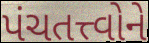
પંચતત્ત્વોને